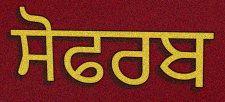
ਸੋਫਰਬ